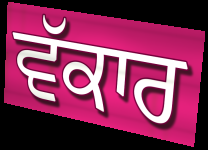
ਵੱਕਾਰ